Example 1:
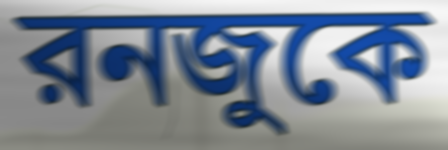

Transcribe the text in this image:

রনজুকে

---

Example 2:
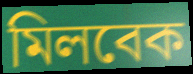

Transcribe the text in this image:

মিলবেক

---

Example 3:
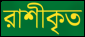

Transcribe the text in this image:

রাশীকৃত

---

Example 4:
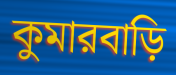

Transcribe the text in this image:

কুমারবাড়ি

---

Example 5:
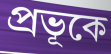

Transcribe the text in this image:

প্রভূকে